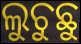
ଲୁଚୁଛୁ